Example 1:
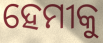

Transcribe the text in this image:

ହେମୀକୁ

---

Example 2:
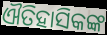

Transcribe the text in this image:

ଐତିହାସିକଙ୍କ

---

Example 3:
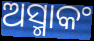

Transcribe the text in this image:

ଅସ୍ମାକଂ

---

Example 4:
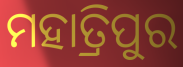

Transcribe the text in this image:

ମହାତ୍ରିପୁର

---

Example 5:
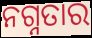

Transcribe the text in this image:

ନଗ୍ନତାର